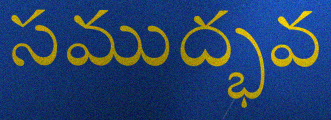
సముద్భవ